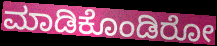
ಮಾಡಿಕೊಂಡಿರೋ